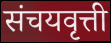
संचयवृत्ती